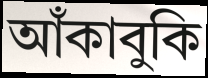
আঁকাবুকি